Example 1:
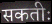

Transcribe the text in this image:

सकतीः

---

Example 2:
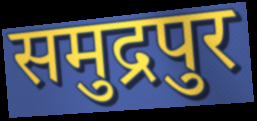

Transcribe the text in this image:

समुद्रपुर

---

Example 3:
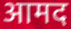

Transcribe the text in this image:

आमद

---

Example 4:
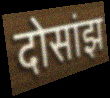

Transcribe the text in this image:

दोसांझ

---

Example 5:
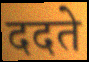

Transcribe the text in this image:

ददते